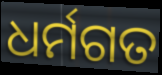
ଧର୍ମଗତ